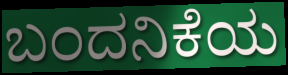
ಬಂದನಿಕೆಯ